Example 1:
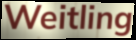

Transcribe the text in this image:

Weitling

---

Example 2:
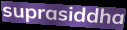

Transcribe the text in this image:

suprasiddha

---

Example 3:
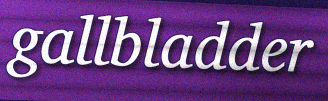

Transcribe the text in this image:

gallbladder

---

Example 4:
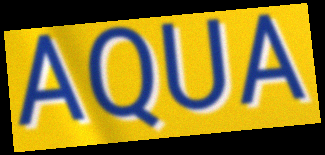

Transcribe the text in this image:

AQUA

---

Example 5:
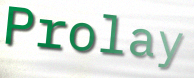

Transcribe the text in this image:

Prolay